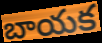
బాయక